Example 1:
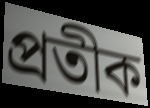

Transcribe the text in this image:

প্রতীক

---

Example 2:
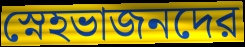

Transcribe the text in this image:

স্নেহভাজনদের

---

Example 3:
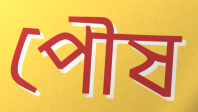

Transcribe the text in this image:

পৌষ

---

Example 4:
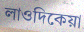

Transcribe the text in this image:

লাওদিকেয়া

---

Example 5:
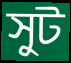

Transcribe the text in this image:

সুট